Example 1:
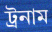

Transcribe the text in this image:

ট্রনাম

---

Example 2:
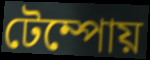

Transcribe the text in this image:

টেম্পোয়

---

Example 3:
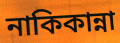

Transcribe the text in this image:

নাকিকান্না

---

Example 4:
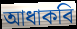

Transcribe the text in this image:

আধাকবি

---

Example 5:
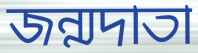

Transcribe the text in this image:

জন্মদাতা